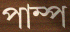
পাম্প